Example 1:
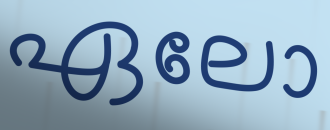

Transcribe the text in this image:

ഏലോ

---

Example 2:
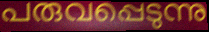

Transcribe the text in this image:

പരുവപ്പെടുന്നു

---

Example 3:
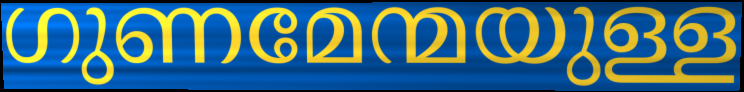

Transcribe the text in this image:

ഗുണമേന്മയുള്ള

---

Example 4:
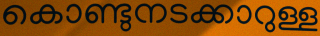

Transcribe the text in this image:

കൊണ്ടുനടക്കാറുള്ള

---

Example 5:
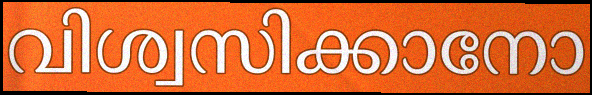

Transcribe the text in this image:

വിശ്വസിക്കാനോ